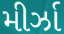
મીર્ઝા